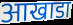
आखाडा